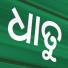
ଧାତୁ